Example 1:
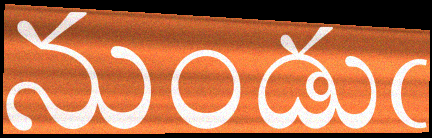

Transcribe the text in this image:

నుండుఁ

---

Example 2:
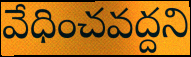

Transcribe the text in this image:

వేధించవద్దని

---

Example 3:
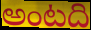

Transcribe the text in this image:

అంటది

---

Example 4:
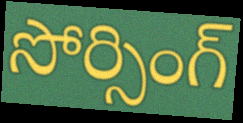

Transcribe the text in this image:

సోర్సింగ్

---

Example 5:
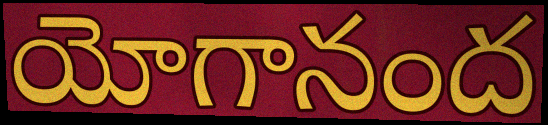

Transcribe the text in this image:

యోగానంద